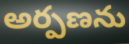
అర్పణను